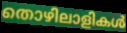
തൊഴിലാളികൾ